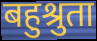
बहुश्रुता